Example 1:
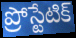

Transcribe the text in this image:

ప్రోస్టేటిక్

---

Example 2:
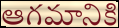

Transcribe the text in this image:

ఆగమానికి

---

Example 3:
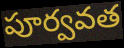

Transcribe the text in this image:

పూర్వవత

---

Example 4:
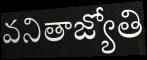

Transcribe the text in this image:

వనితాజ్యోతి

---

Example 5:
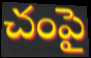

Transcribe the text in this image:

చంపై